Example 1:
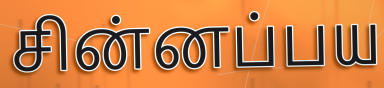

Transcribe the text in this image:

சின்னப்பய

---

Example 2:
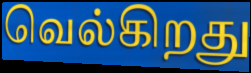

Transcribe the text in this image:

வெல்கிறது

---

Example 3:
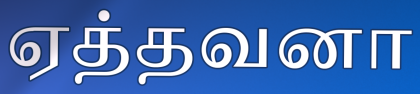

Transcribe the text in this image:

ஏத்தவனா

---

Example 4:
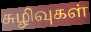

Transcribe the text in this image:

சுழிவுகள்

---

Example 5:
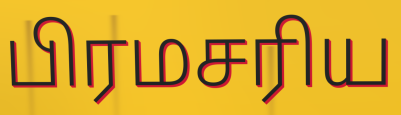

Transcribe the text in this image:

பிரமசரிய